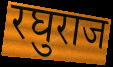
रघुराज